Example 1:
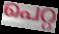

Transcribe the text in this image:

പെറ്റ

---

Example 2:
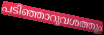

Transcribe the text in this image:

പടിഞ്ഞാറുവശത്തും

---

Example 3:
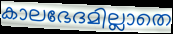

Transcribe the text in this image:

കാലഭേദമില്ലാതെ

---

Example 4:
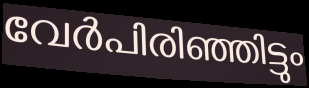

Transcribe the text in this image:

വേർപിരിഞ്ഞിട്ടും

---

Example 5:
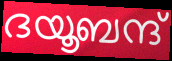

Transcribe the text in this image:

ദയൂബന്ദ്